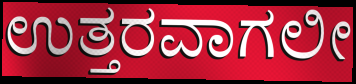
ಉತ್ತರವಾಗಲೀ